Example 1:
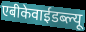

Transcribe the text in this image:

एबीकेवाईडब्ल्यू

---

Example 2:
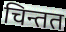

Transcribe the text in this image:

चिन्तत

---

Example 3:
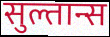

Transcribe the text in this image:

सुल्तान्स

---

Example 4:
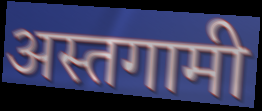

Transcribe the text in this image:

अस्तगामी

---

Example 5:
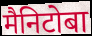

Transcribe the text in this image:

मैनिटोबा